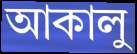
আকালু